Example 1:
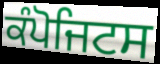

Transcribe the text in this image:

ਕੰਪੋਜਿਟਸ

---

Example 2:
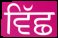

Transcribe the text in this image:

ਵਿੱਛ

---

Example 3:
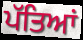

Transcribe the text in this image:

ਪੱਤਿਆਂ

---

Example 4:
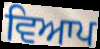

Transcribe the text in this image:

ਵਿਆਪ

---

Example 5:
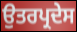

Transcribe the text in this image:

ਉਤਰਪ੍ਰਦੇਸ